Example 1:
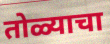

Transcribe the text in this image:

तोळ्याचा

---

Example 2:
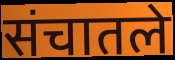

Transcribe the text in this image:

संचातले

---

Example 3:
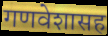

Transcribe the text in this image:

गणवेशासह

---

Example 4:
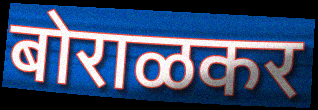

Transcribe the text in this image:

बोराळकर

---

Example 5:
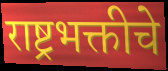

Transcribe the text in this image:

राष्ट्रभक्तीचे